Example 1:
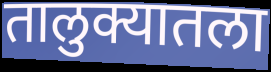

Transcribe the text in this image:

तालुक्यातला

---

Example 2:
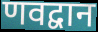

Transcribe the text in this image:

णवद्वान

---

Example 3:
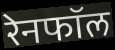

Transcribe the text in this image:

रेनफॉल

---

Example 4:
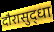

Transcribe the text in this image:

दौरासुद्धा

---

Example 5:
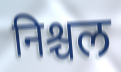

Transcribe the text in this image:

निश्चल